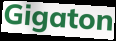
Gigaton